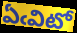
ఏఁవిటో